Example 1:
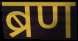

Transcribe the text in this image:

ब्रण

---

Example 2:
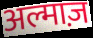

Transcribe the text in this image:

अल्माज़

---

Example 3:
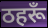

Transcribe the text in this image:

ठहरूँ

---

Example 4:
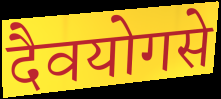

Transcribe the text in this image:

दैवयोगसे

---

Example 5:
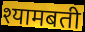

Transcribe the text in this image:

श्यामबती